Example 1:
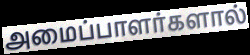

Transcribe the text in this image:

அமைப்பாளர்களால்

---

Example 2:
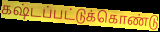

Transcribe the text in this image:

கஷ்டப்பட்டுக்கொண்டு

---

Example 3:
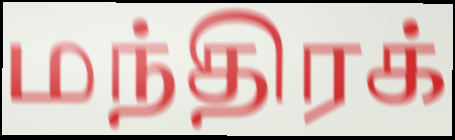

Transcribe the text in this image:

மந்திரக்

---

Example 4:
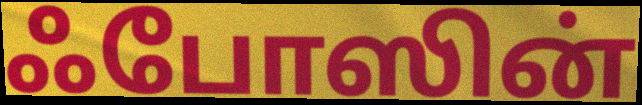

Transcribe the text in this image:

ஃபோஸின்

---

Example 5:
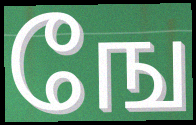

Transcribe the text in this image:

ஙே